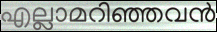
എല്ലാമറിഞ്ഞവൻ